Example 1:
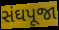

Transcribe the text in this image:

સંઘપૂજા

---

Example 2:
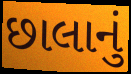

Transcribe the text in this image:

છાલાનું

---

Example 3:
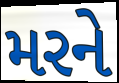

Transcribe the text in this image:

મરને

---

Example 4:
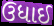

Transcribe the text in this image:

ઉધાઈ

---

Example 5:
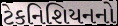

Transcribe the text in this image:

ટેકનિશિયનનો